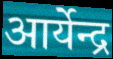
आर्येन्द्र